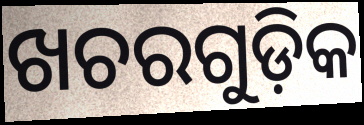
ଖଚରଗୁଡ଼ିକ